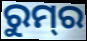
ରୁମ୍‍ର